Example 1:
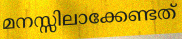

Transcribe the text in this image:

മനസ്സിലാക്കേണ്ടത്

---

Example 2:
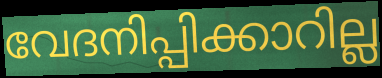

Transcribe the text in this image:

വേദനിപ്പിക്കാറില്ല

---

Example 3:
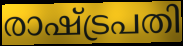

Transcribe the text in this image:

രാഷ്ട്രപതി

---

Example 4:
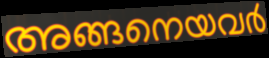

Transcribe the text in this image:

അങ്ങനെയവർ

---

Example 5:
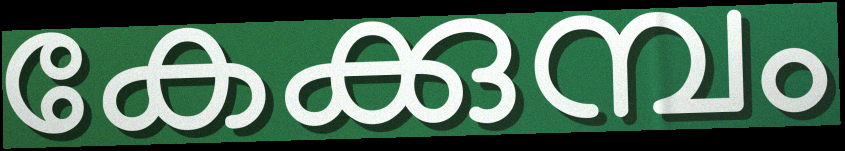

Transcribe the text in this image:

കേക്കുമ്പം